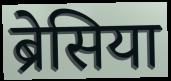
ब्रेसिया